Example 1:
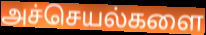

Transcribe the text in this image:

அச்செயல்களை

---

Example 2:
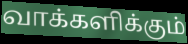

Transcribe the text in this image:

வாக்களிக்கும்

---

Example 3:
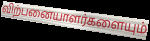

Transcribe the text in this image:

விற்பனையாளர்களையும்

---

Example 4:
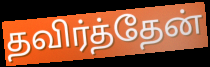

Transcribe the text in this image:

தவிர்த்தேன்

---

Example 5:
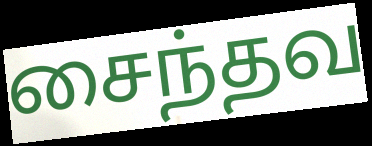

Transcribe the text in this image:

சைந்தவ